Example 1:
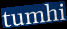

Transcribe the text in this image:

tumhi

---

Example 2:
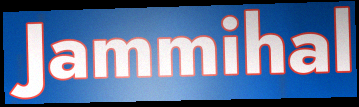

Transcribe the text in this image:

Jammihal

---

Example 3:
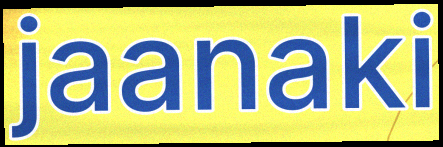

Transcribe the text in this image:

jaanaki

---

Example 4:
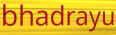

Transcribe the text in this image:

bhadrayu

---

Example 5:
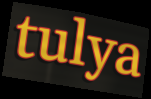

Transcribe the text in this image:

tulya